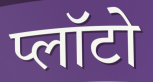
प्लॉटो